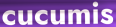
cucumis